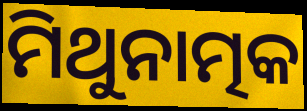
ମିଥୁନାତ୍ମକ